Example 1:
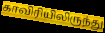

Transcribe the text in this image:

காவிரியிலிருந்து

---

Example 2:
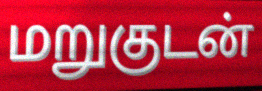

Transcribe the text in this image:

மறுகுடன்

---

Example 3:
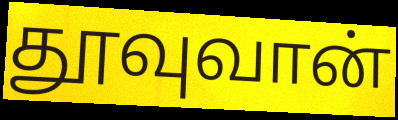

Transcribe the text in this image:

தூவுவான்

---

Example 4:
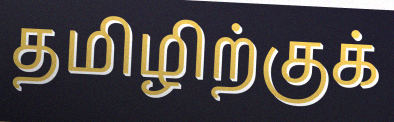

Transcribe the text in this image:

தமிழிற்குக்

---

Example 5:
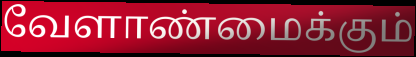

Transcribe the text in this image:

வேளாண்மைக்கும்